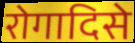
रोगादिसे